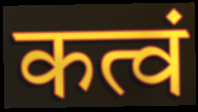
कत्वं